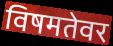
विषमतेवर